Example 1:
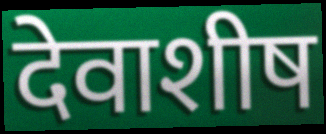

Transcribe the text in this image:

देवाशीष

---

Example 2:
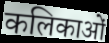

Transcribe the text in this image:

कलिकाओं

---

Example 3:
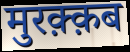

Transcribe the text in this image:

मुरक़्क़ब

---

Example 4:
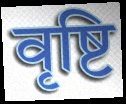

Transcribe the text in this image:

वृष्टि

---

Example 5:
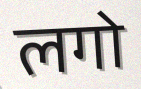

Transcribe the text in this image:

लगो